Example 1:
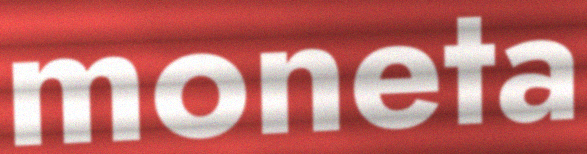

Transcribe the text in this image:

moneta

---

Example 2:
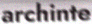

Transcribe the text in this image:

archinte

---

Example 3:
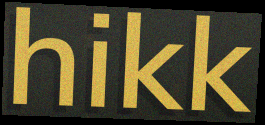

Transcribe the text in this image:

hikk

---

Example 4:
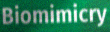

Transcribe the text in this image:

Biomimicry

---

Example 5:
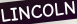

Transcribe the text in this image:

LINCOLN